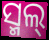
ସ୍ମଲ୍